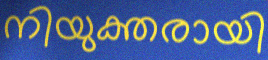
നിയുക്തരായി